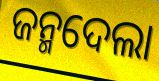
ଜନ୍ମଦେଲା